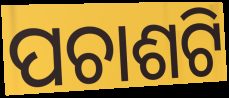
ପଚାଶଟି